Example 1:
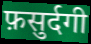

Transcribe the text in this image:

फ़सुर्दगी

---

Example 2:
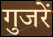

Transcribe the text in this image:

गुजरें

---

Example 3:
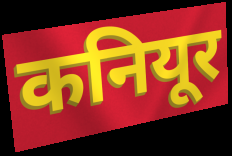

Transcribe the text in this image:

कनियूर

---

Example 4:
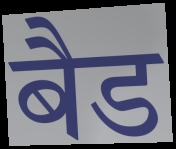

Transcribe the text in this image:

बैड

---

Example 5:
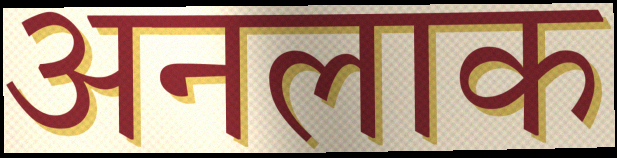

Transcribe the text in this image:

अनलाक